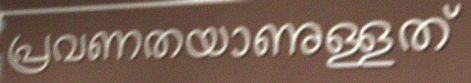
പ്രവണതയാണുള്ളത്